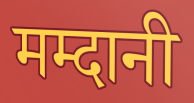
मम्दानी